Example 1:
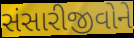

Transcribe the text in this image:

સંસારીજીવોને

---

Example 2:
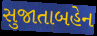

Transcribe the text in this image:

સુજાતાબહેન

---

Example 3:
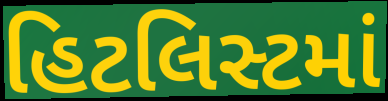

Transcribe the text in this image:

હિટલિસ્ટમાં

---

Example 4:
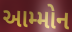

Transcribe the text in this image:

આમ્મોન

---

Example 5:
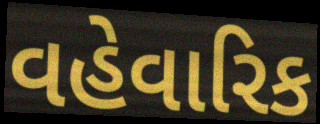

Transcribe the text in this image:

વહેવારિક